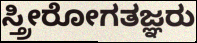
ಸ್ತ್ರೀರೋಗತಜ್ಞರು